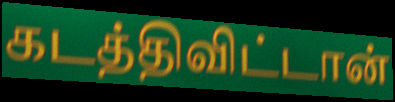
கடத்திவிட்டான்